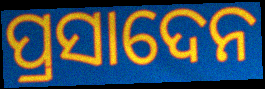
ପ୍ରସାଦେନ